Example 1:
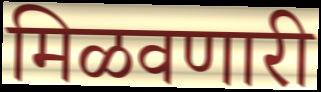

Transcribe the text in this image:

मिळवणारी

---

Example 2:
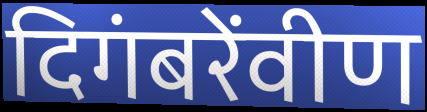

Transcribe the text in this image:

दिगंबरेंवीण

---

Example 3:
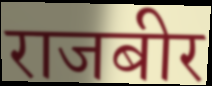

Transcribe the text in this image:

राजबीर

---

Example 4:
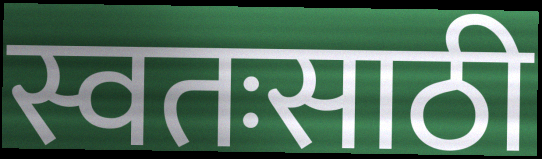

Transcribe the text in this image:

स्वतःसाठी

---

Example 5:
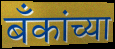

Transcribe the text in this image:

बॅंकांच्या